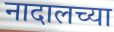
नादालच्या